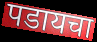
पडायचा